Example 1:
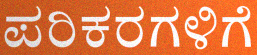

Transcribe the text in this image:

ಪರಿಕರಗಳಿಗೆ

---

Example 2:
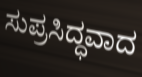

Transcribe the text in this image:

ಸುಪ್ರಸಿದ್ಧವಾದ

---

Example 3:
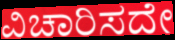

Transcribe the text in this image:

ವಿಚಾರಿಸದೇ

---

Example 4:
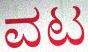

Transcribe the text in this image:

ವಟ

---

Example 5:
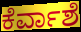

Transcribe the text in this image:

ಕೆರ್ವಾಶೆ